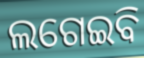
ଲଗେଇବି